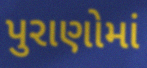
પુરાણોમાં